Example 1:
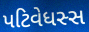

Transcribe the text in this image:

પટિવેધસ્સ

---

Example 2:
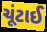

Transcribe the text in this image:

ચૂંટાઈ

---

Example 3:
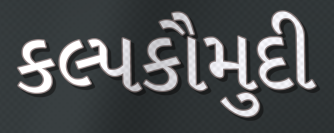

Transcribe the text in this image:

કલ્પકૌમુદી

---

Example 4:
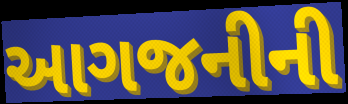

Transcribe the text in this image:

આગજનીની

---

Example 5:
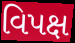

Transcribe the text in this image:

વિપક્ષ